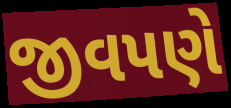
જીવપણે